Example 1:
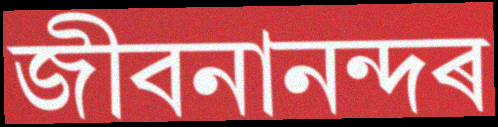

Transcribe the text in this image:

জীবনানন্দৰ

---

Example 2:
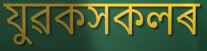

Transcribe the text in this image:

যুৱকসকলৰ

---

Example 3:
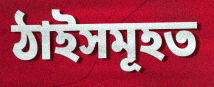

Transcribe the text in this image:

ঠাইসমূহত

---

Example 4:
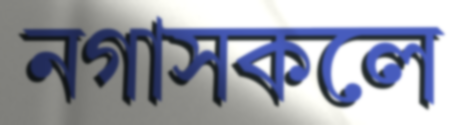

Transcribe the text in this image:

নগাসকলে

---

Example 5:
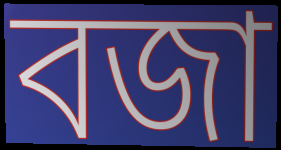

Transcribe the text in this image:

বজা